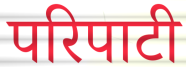
परिपाटी